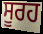
ਸੂਰਹ